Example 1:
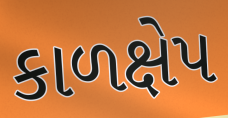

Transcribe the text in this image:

કાળક્ષેપ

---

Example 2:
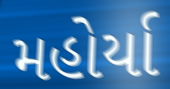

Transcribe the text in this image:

મહોર્યા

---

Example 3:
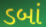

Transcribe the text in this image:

ડબાં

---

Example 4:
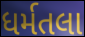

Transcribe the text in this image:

ધર્મતલા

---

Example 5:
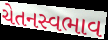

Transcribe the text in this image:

ચેતનસ્વભાવ